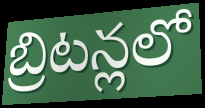
బ్రిటన్లలో